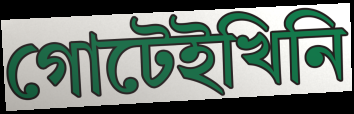
গোটেইখিনি